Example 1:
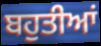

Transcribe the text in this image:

ਬਹੁਤੀਆਂ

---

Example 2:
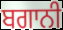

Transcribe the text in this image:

ਬਗਾਨੀ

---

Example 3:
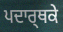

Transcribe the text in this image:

ਪਦਾਰ੍ਥਕੇ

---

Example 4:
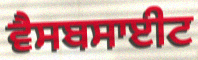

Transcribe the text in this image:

ਵੈਸਬਸਾਈਟ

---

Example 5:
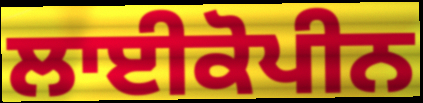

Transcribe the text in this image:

ਲਾਈਕੋਪੀਨ